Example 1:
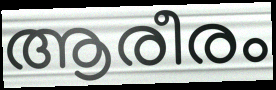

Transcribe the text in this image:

ആരീരം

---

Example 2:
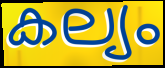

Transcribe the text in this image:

കല്യം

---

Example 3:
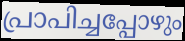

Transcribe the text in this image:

പ്രാപിച്ചപ്പോഴും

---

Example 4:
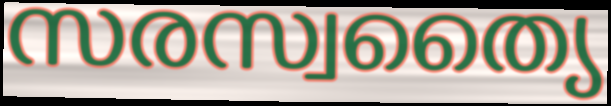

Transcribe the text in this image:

സരസ്വത്യൈ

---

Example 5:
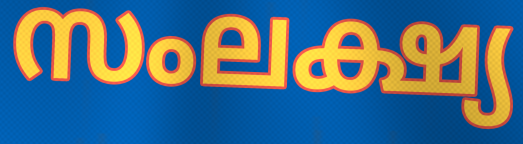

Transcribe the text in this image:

സംലക്ഷ്യ